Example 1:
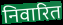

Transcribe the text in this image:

निवारित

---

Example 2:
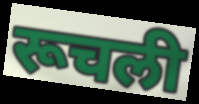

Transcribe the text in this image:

रूचली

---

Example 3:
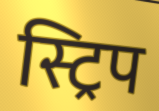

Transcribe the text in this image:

स्ट्रिप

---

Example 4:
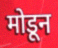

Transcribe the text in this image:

मोडून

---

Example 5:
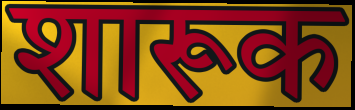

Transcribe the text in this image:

शारूक